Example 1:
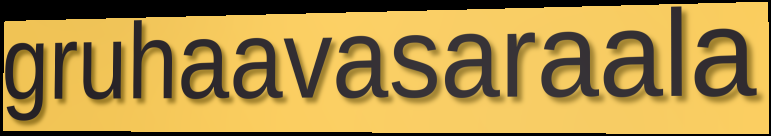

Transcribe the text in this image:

gruhaavasaraala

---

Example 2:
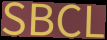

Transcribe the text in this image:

SBCL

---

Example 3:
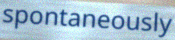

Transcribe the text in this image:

spontaneously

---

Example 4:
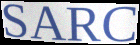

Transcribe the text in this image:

SARC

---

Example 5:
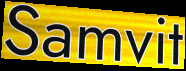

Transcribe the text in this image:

Samvit